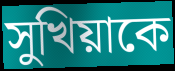
সুখিয়াকে